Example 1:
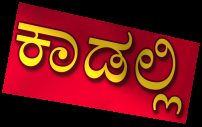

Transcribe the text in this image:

ಕಾಡಲ್ಲಿ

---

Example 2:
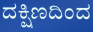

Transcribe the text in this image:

ದಕ್ಷಿಣದಿಂದ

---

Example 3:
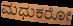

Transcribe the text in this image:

ಮಧುಕರೋ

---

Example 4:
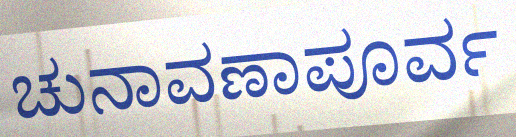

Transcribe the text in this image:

ಚುನಾವಣಾಪೂರ್ವ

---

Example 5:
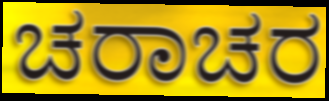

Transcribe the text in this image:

ಚರಾಚರ